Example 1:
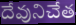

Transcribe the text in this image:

దేవునిచేత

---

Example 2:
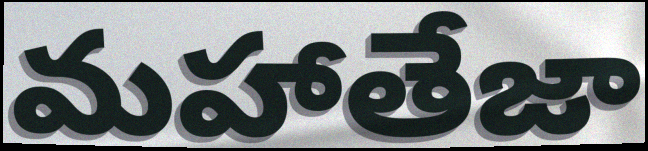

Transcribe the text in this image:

మహాతేజా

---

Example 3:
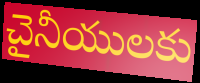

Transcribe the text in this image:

చైనీయులకు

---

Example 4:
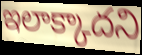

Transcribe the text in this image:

ఇలాక్కాదని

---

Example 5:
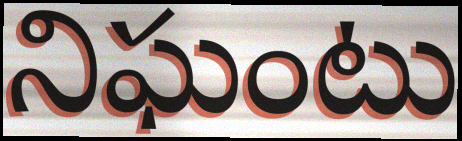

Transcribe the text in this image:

నిఘంటు